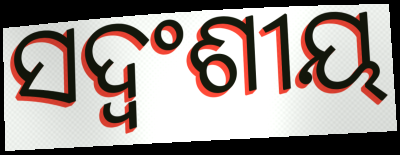
ସଦ୍ବଂଶୀୟ